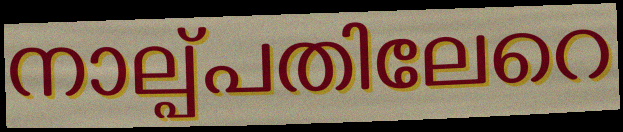
നാല്പ്പതിലേറെ